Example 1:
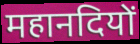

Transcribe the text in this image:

महानदियों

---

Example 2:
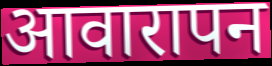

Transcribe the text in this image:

आवारापन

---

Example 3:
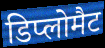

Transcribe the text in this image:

डिप्लोमैट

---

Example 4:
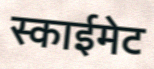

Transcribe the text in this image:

स्काईमेट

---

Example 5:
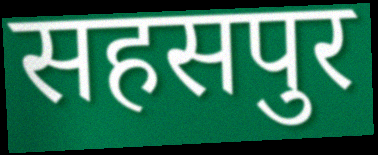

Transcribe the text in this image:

सहसपुर